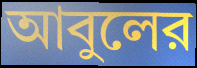
আবুলের